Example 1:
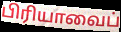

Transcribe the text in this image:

பிரியாவைப்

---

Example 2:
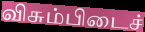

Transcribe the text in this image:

விசும்பிடைச்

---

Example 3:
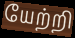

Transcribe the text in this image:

யேற்றி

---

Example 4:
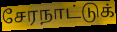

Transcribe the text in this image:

சேரநாட்டுக்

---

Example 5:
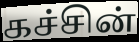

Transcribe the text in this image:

கச்சின்